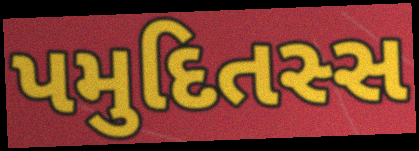
પમુદિતસ્સ